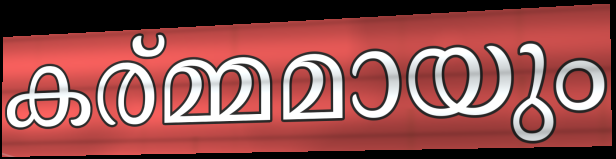
കര്മ്മമായും